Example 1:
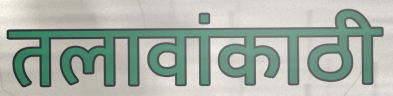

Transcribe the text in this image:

तलावांकाठी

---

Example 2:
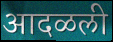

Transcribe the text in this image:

आदळली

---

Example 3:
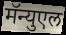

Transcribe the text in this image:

मॅन्युएल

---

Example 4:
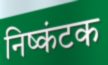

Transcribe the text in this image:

निष्कंटक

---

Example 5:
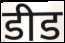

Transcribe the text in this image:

डीड